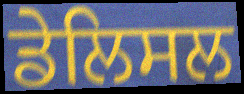
ਡੇਲਿਸਲ